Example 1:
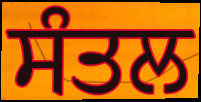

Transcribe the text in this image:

ਸੰਤਲ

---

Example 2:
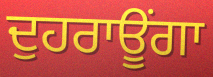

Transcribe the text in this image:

ਦੁਹਰਾਊਂਗਾ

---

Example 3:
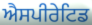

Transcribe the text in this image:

ਐਸਪੀਰੇਟਿਡ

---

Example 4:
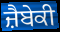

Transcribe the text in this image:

ਜ਼ੈਬੇਕੀ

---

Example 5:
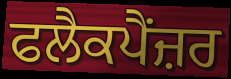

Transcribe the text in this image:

ਫਲੈਕਪੈਂਜ਼ਰ